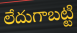
లేదుగాబట్టి